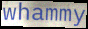
whammy